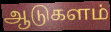
ஆடுகளம்